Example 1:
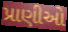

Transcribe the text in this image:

પ્રાણીઓ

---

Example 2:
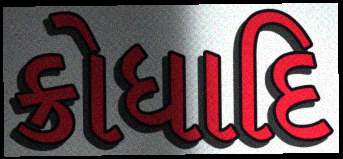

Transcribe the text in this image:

ક્રોધાદિ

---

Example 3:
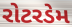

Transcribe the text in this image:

રોટરડેમ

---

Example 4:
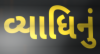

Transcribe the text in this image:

વ્યાધિનું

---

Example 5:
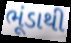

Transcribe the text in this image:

ભૂંડાથી